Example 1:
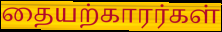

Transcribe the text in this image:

தையற்காரர்கள்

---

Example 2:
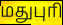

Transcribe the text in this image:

மதுபுரி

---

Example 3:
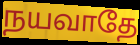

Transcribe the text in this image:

நயவாதே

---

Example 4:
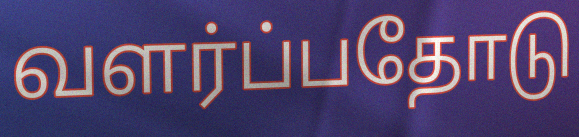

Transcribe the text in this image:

வளர்ப்பதோடு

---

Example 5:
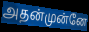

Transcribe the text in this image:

அதன்முன்னே